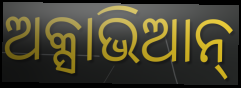
ଅକ୍ସାଭିଆନ୍